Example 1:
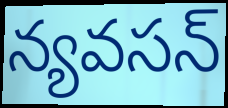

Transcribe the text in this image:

న్యవసన్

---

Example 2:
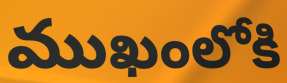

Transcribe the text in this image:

ముఖంలోకి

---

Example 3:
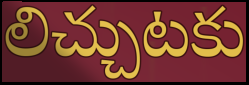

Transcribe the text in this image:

లిచ్చుటకు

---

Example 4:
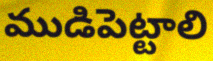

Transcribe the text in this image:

ముడిపెట్టాలి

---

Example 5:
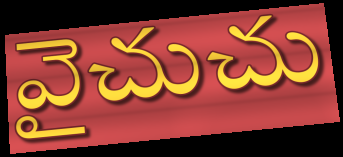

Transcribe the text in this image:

వైచుచు